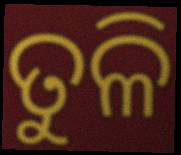
ତୁଳି